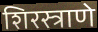
शिरस्त्राणे